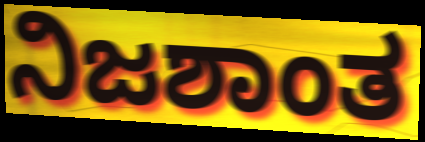
ನಿಜಶಾಂತ